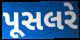
પૂસલરે